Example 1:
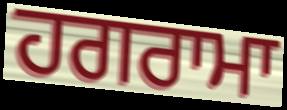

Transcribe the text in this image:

ਹਗਰਾਮਾ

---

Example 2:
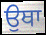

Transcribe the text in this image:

ਉਥਾ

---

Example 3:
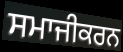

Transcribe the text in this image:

ਸਮਾਜੀਕਰਨ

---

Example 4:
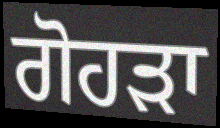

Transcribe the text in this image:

ਗੋਹੜਾ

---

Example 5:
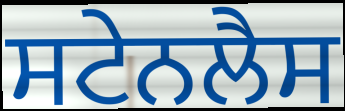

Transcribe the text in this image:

ਸਟੇਨਲੈਸ